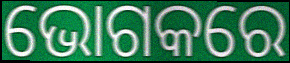
ଭୋଗକରେ